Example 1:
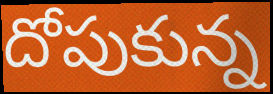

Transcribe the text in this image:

దోపుకున్న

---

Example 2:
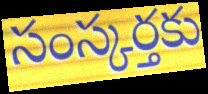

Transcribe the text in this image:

సంస్కర్తకు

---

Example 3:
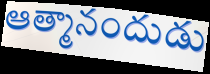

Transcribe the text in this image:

ఆత్మానందుడు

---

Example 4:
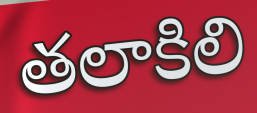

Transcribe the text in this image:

తలాకిలి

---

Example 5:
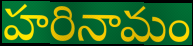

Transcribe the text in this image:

హరినామం